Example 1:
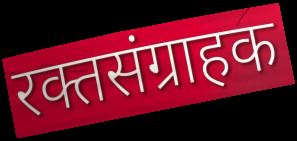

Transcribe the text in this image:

रक्तसंग्राहक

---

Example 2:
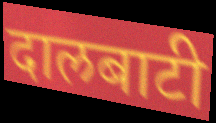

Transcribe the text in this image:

दालबाटी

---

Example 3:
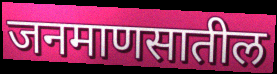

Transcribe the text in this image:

जनमाणसातील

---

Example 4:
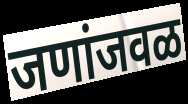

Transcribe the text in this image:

जणांजवळ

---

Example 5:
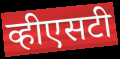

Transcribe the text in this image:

व्हीएसटी